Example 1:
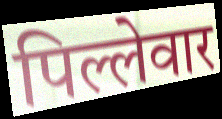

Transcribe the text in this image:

पिल्लेवार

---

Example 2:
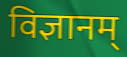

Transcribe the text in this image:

विज्ञानम्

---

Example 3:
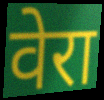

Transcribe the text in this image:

वेरा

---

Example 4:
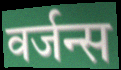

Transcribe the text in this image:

वर्जन्स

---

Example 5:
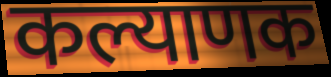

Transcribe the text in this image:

कल्याणक